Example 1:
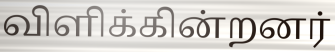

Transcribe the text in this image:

விளிக்கின்றனர்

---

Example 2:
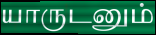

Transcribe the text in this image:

யாருடனும்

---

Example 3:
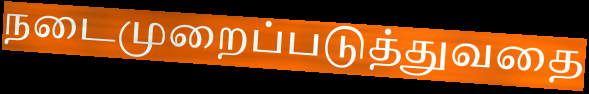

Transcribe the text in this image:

நடைமுறைப்படுத்துவதை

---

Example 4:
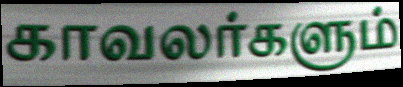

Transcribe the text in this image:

காவலர்களும்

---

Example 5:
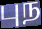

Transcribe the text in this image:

புந